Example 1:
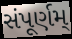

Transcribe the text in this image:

સંપૂર્ણમ્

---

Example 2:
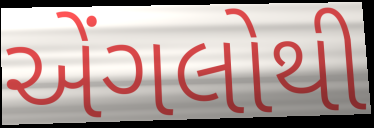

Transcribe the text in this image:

એંગલોથી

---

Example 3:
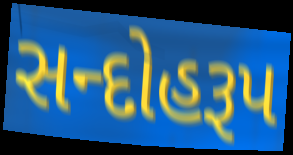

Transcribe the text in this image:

સન્દોહરૂપ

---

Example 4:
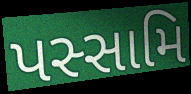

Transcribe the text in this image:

પસ્સામિ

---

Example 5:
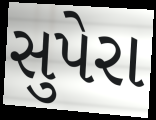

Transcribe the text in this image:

સુપેરા